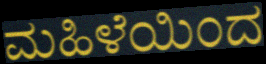
ಮಹಿಳೆಯಿಂದ